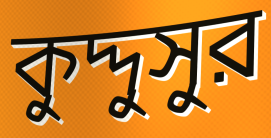
কুদ্দুসুর